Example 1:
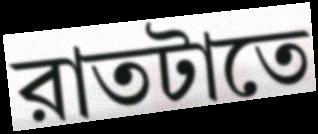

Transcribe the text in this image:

রাতটাতে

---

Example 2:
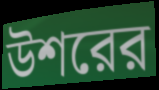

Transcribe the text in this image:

উশরের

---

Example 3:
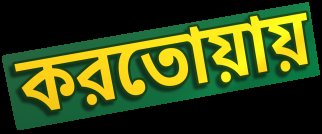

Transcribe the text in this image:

করতোয়ায়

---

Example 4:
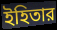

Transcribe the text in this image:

ইহিতার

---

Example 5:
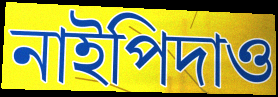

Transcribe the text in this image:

নাইপিদাও